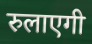
रुलाएगी